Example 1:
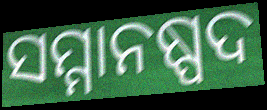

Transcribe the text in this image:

ସମ୍ମାନଷ୍ପଦ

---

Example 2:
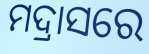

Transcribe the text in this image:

ମଦ୍ରାସରେ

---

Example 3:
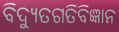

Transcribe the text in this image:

ବିଦ୍ୟୁତଗତିବିଜ୍ଞାନ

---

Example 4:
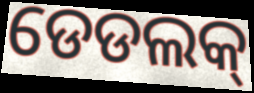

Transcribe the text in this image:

ଡେଡଲକ୍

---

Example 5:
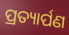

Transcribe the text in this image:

ପ୍ରତ୍ୟାର୍ପଣ